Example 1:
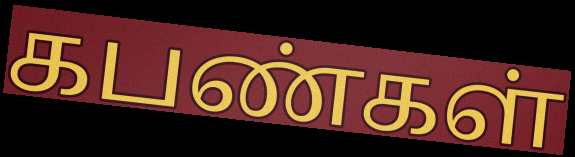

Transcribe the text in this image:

கபண்கள்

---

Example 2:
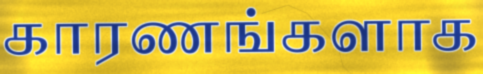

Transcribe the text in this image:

காரணங்களாக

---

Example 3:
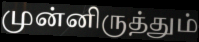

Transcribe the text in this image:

முன்னிருத்தும்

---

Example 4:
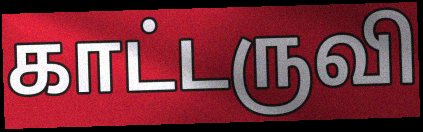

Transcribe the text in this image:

காட்டருவி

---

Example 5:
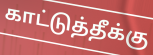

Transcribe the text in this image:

காட்டுத்தீக்கு